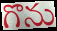
గొను